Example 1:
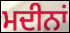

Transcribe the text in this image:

ਮਦੀਨਾਂ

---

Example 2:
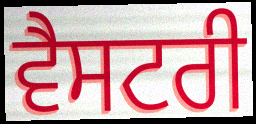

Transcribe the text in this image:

ਵੈਸਟਰੀ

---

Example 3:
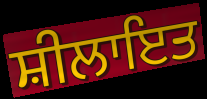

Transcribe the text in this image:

ਸ਼ੀਲਾਇਤ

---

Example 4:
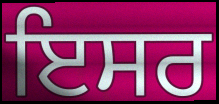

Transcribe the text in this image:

ਇਸਰ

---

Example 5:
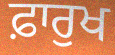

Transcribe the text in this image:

ਫ਼ਾਰੁਖ